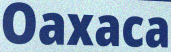
Oaxaca